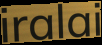
iralai